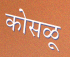
कोसळू